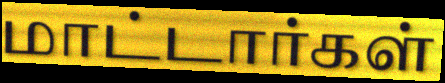
மாட்டார்கள்